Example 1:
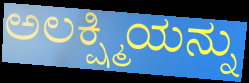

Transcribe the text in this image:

ಅಲಕ್ಷ್ಮಿಯನ್ನು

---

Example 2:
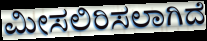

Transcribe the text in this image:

ಮೀಸಲಿರಿಸಲಾಗಿದೆ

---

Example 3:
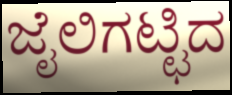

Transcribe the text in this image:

ಜೈಲಿಗಟ್ಟಿದ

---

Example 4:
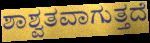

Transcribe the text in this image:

ಶಾಶ್ವತವಾಗುತ್ತದೆ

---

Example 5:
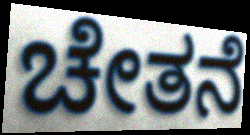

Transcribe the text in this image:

ಚೇತನೆ